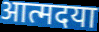
आत्मदया